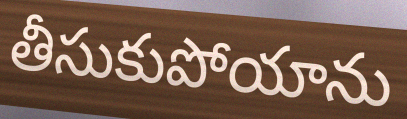
తీసుకుపోయాను